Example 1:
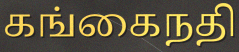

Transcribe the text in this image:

கங்கைநதி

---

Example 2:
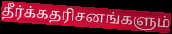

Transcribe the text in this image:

தீர்க்கதரிசனங்களும்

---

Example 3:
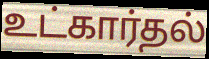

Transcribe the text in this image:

உட்கார்தல்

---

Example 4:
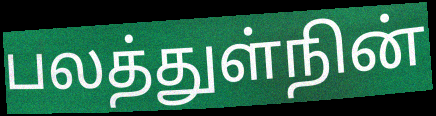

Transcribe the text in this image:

பலத்துள்நின்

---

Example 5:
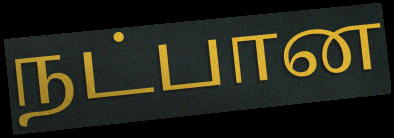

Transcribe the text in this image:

நட்பான